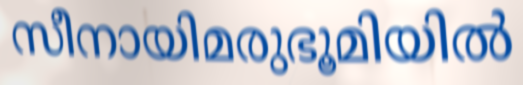
സീനായിമരുഭൂമിയിൽ